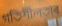
গতিশীলতাৰ